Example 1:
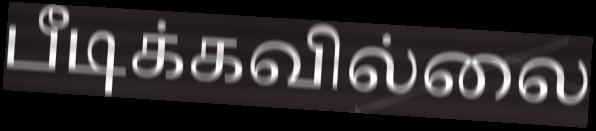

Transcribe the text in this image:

பீடிக்கவில்லை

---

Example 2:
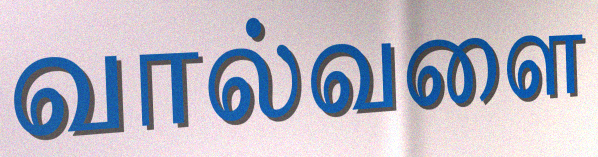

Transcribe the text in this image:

வால்வளை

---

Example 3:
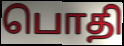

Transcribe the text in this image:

பொதி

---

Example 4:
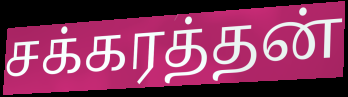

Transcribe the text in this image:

சக்கரத்தன்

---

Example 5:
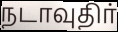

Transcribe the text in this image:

நடாவுதிர்